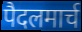
पैदलमार्च